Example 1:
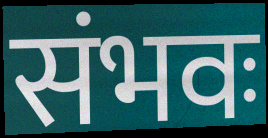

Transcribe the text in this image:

संभवः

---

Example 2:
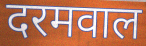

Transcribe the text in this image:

दरमवाल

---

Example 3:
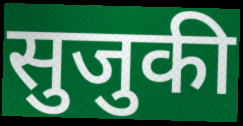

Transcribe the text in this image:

सुजुकी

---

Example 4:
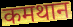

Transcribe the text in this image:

कमथान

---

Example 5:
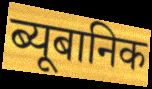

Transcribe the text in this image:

ब्यूबानिक